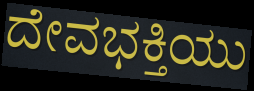
ದೇವಭಕ್ತಿಯು